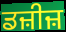
ਡਜ਼ੀਜ਼